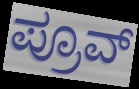
ಪ್ರೂವ್